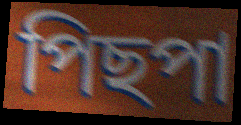
পিছপা